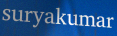
suryakumar